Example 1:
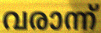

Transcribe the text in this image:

വരാന്ന്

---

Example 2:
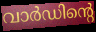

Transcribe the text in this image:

വാർഡിന്റെ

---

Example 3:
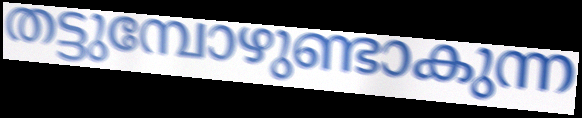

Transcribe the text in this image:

തട്ടുമ്പോഴുണ്ടാകുന്ന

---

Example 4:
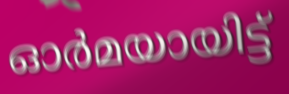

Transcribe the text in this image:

ഓർമയായിട്ട്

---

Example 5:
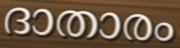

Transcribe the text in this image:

ദാതാരം